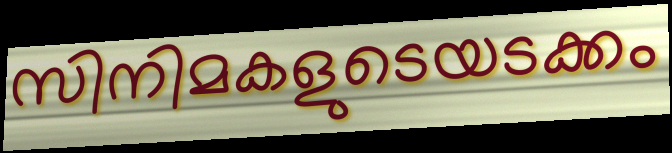
സിനിമകളുടെയടക്കം